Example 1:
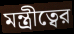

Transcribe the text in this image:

মন্ত্রীত্বের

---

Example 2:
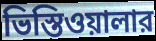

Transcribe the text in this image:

ভিস্তিওয়ালার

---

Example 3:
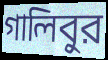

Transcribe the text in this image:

গালিবুর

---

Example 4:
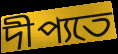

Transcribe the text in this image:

দীপ্যতে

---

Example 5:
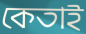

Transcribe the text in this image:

কেতাই